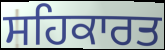
ਸਹਿਕਾਰਤ